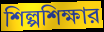
শিল্পশিক্ষার